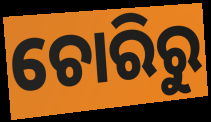
ଚୋରିରୁ